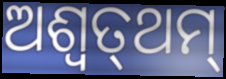
ଅଶ୍ୱତ୍‌ଥମ୍